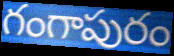
గంగాపురం